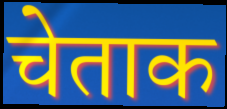
चेताक